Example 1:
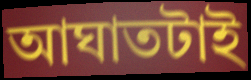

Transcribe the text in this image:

আঘাতটাই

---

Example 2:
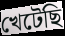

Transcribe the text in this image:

খেটেছি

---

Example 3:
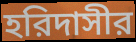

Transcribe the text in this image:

হরিদাসীর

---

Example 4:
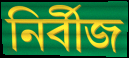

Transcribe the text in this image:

নির্বীজ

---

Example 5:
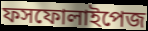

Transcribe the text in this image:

ফসফোলাইপেজ